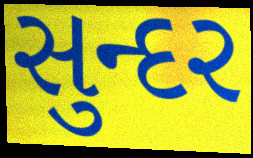
સુન્દર